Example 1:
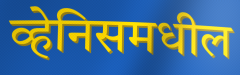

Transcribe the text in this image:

व्हेनिसमधील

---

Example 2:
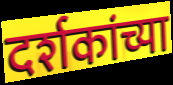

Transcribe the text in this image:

दर्शकांच्या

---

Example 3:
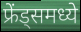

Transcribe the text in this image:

फ्रेंड्समध्ये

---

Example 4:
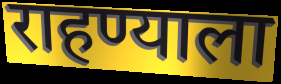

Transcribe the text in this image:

राहण्याला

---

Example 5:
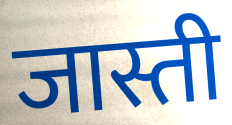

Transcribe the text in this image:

जास्ती